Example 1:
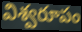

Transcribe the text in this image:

విశ్వరూపం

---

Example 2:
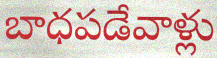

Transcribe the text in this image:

బాధపడేవాళ్లు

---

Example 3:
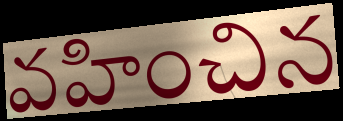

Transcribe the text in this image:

వహించిన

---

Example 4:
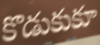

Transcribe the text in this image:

కొడుకుకూ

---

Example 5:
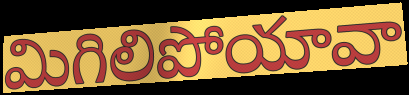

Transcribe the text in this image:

మిగిలిపోయావా